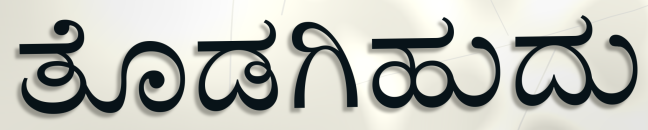
ತೊಡಗಿಹುದು